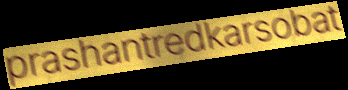
prashantredkarsobat